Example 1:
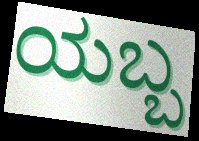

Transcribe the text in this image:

ಯಬ್ಬ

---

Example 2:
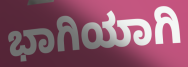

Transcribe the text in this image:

ಭಾಗಿಯಾಗಿ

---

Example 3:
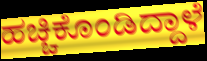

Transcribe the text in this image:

ಹಚ್ಚಿಕೊಂಡಿದ್ದಾಳೆ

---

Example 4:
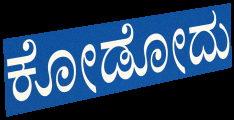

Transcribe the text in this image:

ಕೋಡೋದು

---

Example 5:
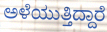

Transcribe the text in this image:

ಅಳೆಯುತ್ತಿದ್ದಾರೆ